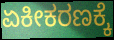
ಏಕೀಕರಣಕ್ಕೆ